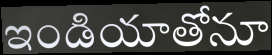
ఇండియాతోనూ